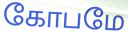
கோபமே